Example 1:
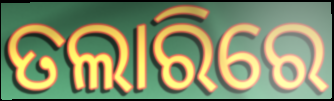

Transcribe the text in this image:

ତଲାରିରେ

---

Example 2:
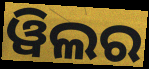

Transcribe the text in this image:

ୱିଲର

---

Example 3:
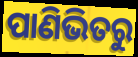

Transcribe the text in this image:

ପାଣିଭିତରୁ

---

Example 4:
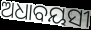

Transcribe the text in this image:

ଅଧାବୟସୀ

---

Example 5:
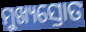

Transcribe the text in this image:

ମୁଖ୍ୟସ୍ରୋତ